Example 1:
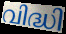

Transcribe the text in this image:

വിദ്ധി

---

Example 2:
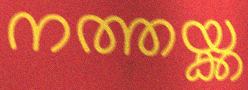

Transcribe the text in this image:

നത്തയ്ക്ക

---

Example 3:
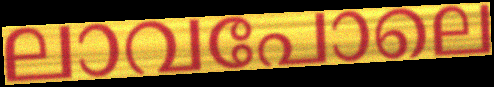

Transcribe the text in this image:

ലാവപോലെ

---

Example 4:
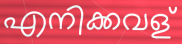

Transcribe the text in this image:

എനിക്കവള്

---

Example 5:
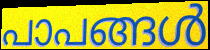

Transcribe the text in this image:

പാപങ്ങൾ